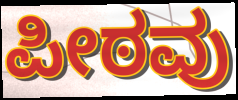
ಪೀಠವು